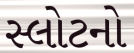
સ્લોટનો